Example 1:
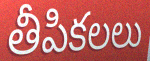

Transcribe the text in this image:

తీపికలలు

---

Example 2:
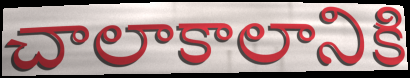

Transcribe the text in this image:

చాలాకాలానికి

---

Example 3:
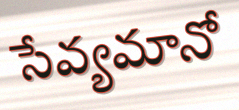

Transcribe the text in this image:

సేవ్యమానో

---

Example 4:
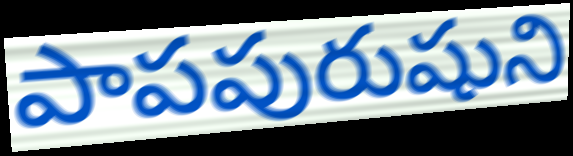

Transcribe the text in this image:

పాపపురుషుని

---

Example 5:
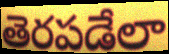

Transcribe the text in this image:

తెరపడేలా